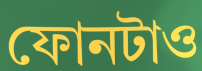
ফোনটাও